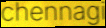
chennagi